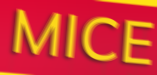
MICE